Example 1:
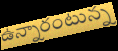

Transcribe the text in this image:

ఉన్నారంటున్న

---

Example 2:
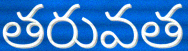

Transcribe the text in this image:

తరువత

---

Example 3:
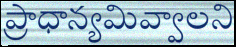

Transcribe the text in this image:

ప్రాధాన్యమివ్వాలని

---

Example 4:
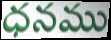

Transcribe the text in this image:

ధనము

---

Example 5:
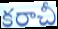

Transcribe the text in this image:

కరాచీ